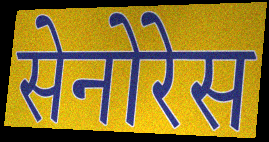
सेनोरेस